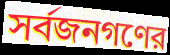
সর্বজনগণের